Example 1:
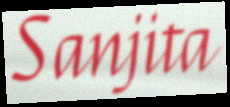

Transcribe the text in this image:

Sanjita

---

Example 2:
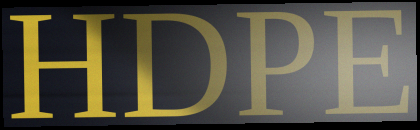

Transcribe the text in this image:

HDPE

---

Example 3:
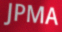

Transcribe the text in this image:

JPMA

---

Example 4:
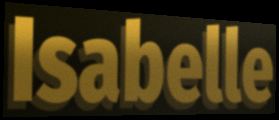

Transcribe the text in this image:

Isabelle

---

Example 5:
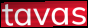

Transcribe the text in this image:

tavas